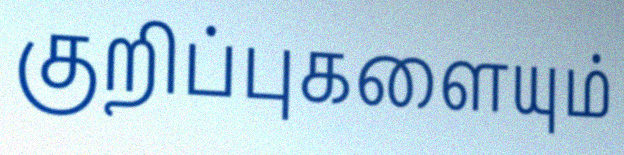
குறிப்புகளையும்